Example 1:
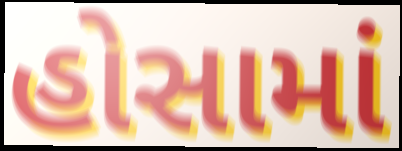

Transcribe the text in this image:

હોસામાં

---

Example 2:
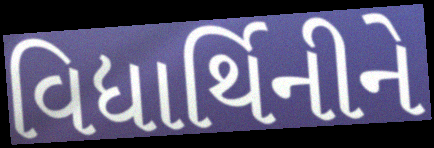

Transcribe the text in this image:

વિદ્યાર્થિનીને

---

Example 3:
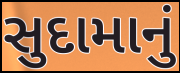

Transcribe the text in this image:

સુદામાનું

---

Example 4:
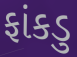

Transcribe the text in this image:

ફાંકડુ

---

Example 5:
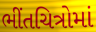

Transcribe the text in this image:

ભીંતચિત્રોમાં